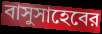
বাসুসাহেবের